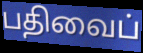
பதிவைப்